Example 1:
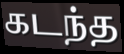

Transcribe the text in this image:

கடந்த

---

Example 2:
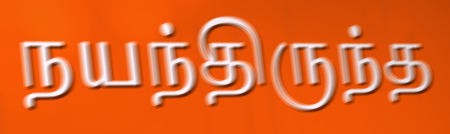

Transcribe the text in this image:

நயந்திருந்த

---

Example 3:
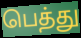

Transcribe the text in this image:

பெத்து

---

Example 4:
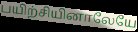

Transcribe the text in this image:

பயிற்சியினாலேயே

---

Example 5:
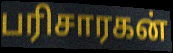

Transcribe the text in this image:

பரிசாரகன்